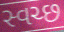
સ્વચ્છ